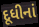
દૂધીનાં